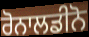
ਰੋਨਾਲਡੀਨੋ